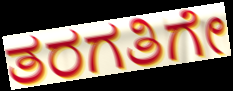
ತರಗತಿಗೇ